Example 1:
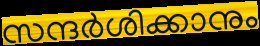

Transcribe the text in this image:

സന്ദർശിക്കാനും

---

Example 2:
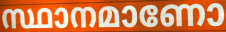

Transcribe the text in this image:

സ്ഥാനമാണോ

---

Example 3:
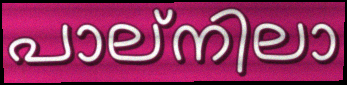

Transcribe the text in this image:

പാല്നിലാ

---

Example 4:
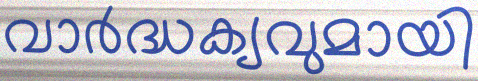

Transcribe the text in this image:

വാർദ്ധക്യവുമായി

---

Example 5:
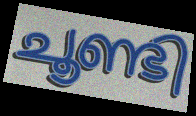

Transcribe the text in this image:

ചൂണ്ടി